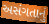
અસંગતાનું